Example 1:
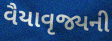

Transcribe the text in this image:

વૈયાવૃજ્યની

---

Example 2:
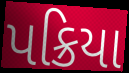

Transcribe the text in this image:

પક્રિયા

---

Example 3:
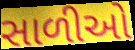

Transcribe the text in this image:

સાળીઓ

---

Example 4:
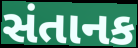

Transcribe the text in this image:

સંતાનક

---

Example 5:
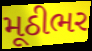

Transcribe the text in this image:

મૂઠીભર